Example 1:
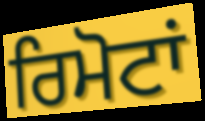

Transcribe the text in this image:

ਰਿਮੋਟਾਂ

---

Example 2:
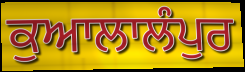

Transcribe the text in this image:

ਕੁਆਲਾਲੰਪੁਰ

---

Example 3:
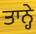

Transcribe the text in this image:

ਤਾਨ੍ਹੇ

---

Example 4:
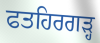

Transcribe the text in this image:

ਫਤਹਿਰਗੜ੍ਹ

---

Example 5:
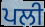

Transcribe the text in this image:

ਪਲੀ